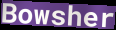
Bowsher